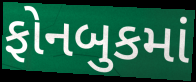
ફોનબુકમાં